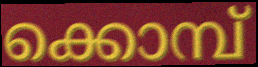
ക്കൊമ്പ്